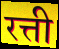
रत्ती